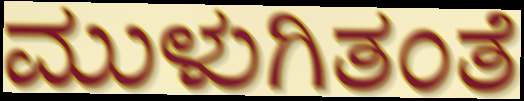
ಮುಳುಗಿತಂತೆ